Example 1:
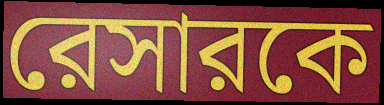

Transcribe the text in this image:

রেসারকে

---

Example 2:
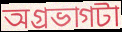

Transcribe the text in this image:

অগ্রভাগটা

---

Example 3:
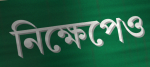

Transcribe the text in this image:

নিক্ষেপেও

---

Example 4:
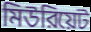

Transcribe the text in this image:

মিউরিয়েট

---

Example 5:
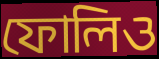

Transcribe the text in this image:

ফোলিও